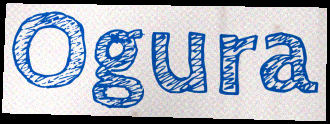
Ogura